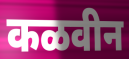
कळवीन